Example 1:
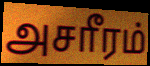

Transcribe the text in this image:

அசரீரம்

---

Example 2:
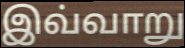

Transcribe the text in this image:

இவ்வாறு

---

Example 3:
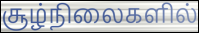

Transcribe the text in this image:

சூழ்நிலைகளில்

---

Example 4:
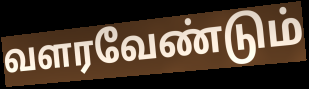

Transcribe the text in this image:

வளரவேண்டும்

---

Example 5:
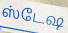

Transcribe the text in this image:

ஸ்டேஷ